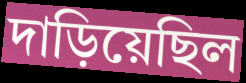
দাড়িয়েছিল